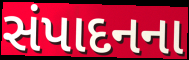
સંપાદનના